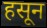
हसून